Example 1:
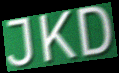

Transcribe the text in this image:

JKD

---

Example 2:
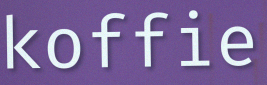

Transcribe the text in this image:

koffie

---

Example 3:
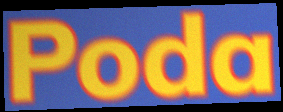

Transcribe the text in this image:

Poda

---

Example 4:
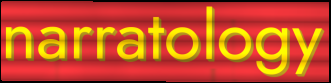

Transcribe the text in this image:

narratology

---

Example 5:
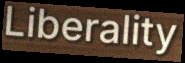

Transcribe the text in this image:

Liberality